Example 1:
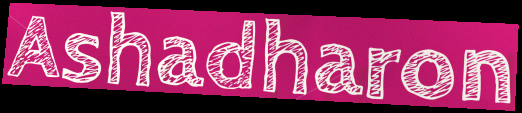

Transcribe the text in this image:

Ashadharon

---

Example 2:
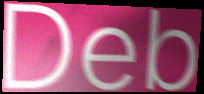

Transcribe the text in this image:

Deb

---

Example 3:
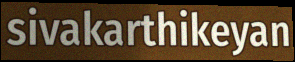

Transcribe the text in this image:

sivakarthikeyan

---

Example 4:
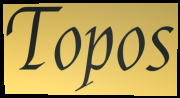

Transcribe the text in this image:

Topos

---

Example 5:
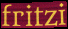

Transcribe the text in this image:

fritzi